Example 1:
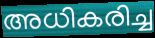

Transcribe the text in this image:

അധികരിച്ച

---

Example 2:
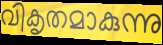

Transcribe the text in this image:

വികൃതമാകുന്നു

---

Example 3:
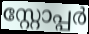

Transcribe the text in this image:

സ്റ്റോപ്പർ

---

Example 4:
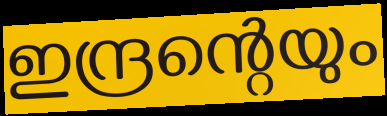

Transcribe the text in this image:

ഇന്ദ്രന്റെയും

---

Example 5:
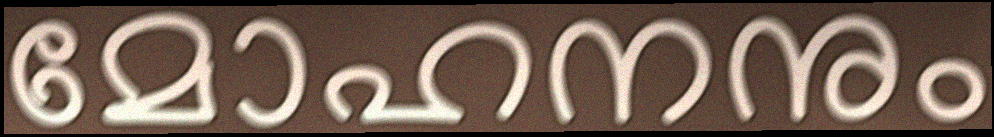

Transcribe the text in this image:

മോഹനനും